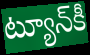
ట్యూన్‌కీ